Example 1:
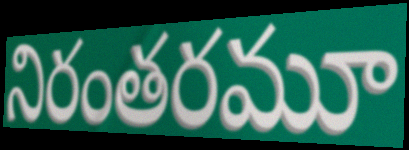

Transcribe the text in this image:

నిరంతరమూ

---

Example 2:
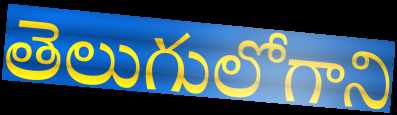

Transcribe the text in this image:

తెలుగులోగాని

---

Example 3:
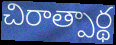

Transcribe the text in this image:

చిరాత్పార్థ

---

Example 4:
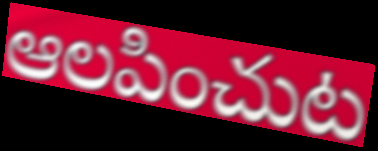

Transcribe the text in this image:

ఆలపించుట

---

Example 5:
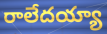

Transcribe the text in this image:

రాలేదయ్యా